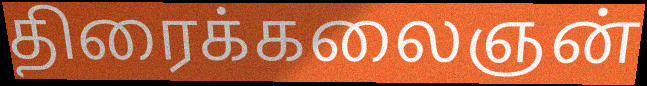
திரைக்கலைஞன்